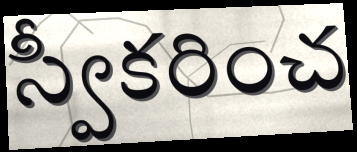
స్వీకరించ